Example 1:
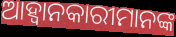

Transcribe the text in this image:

ଆହ୍ଵାନକାରୀମାନଙ୍କ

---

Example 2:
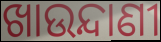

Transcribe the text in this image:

ଖାଉନ୍ଦାଣୀ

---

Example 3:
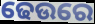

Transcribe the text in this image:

ଢେଉରେ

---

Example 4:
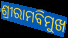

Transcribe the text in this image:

ଶ୍ରୀରାମବିମୁଖ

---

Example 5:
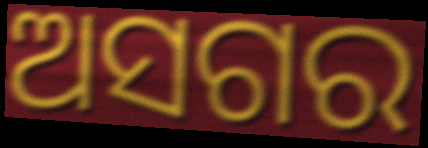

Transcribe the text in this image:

ଅସଗର